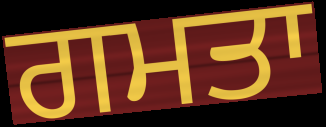
ਗਮਤਾ